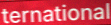
ternational